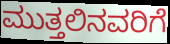
ಮುತ್ತಲಿನವರಿಗೆ